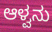
ಆಳ್ವನು